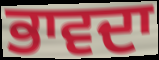
ਭਾਵਦਾ